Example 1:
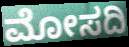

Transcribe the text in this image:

ಮೋಸದಿ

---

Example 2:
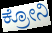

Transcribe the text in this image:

ಕ್ರೋನಿ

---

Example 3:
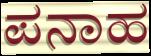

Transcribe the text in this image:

ಪನಾಹ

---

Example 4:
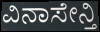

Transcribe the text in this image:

ವಿನಾಸೇನ್ತಿ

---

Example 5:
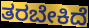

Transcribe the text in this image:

ತರಬೇಕಿದೆ